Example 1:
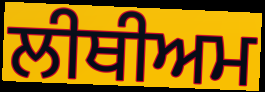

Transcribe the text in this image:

ਲੀਥੀਅਮ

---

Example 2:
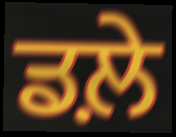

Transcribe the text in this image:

ਡਲ਼ੇ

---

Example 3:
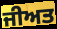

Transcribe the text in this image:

ਜੀਅਤ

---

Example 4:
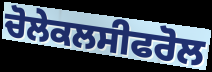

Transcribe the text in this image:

ਚੋਲੇਕਲਸੀਫਰੋਲ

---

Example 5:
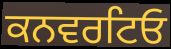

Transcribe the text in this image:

ਕਨਵਰਟਿਓ